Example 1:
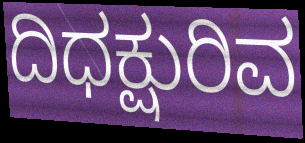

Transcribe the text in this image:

ದಿಧಕ್ಷುರಿವ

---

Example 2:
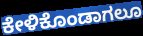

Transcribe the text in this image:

ಕೇಳಿಕೊಂಡಾಗಲೂ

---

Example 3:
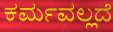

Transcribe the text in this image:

ಕರ್ಮವಲ್ಲದೆ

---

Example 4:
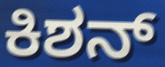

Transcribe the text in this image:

ಕಿಶನ್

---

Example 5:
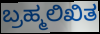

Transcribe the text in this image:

ಬ್ರಹ್ಮಲಿಖಿತ